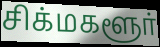
சிக்மகளூர்